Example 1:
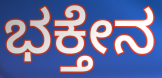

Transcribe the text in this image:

ಭಕ್ತೇನ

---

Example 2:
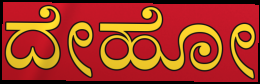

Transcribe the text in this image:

ದೇಹೋ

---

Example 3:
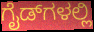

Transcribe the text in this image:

ಗೈಡ್‌ಗಳಲ್ಲಿ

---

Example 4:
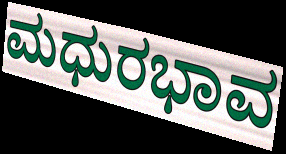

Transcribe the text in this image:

ಮಧುರಭಾವ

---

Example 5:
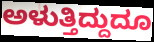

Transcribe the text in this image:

ಅಳುತ್ತಿದ್ದುದೂ